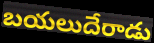
బయలుదేరాడు